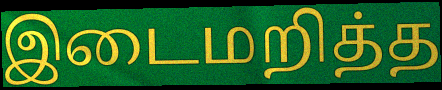
இடைமறித்த